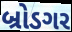
બ્રોડગર